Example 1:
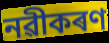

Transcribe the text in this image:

নৱীকৰণ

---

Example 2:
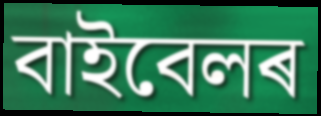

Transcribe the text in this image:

বাইবেলৰ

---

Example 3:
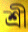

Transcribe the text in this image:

শ্ৰী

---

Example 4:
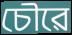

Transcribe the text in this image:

চৌৱে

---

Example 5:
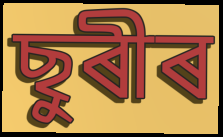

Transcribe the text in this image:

ছুৰীৰ